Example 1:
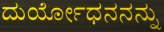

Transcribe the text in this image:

ದುರ್ಯೋಧನನನ್ನು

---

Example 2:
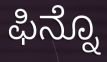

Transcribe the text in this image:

ಫಿನ್ನೊ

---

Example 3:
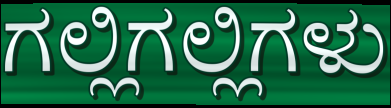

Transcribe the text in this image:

ಗಲ್ಲಿಗಲ್ಲಿಗಳು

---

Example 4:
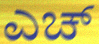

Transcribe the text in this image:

ಎಚ್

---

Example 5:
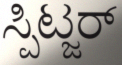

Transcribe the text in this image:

ಸ್ಪಿಟ್ಜರ್